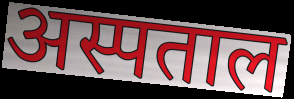
अस्पताल